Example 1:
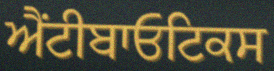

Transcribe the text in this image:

ਐਂਟੀਬਾਓਟਿਕਸ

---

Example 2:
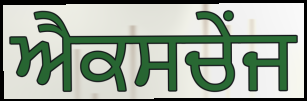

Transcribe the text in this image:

ਐਕਸਚੇਂਜ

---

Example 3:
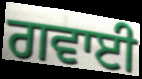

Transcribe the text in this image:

ਗਵਾਈ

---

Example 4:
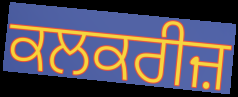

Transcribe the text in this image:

ਕਲਕਰੀਜ਼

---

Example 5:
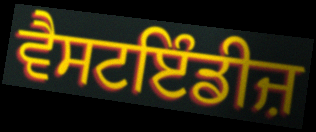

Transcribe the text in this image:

ਵੈਸਟਇੰਡੀਜ਼